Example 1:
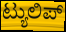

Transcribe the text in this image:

ಟ್ಯುಲಿಪ್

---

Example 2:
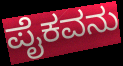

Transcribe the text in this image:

ಪೈಕವನು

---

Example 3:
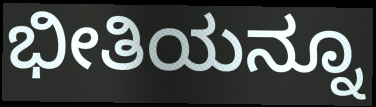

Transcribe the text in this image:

ಭೀತಿಯನ್ನೂ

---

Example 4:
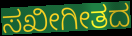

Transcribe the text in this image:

ಸಖೀಗೀತದ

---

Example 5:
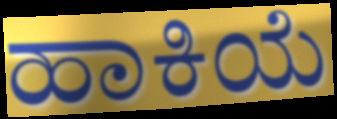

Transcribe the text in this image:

ಹಾಕಿಯೆ